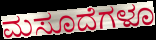
ಮಸೂದೆಗಳೂ